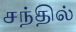
சந்தில்